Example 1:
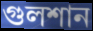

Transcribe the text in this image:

গুলশান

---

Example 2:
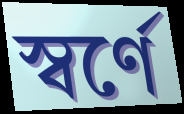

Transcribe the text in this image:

স্বর্ণে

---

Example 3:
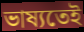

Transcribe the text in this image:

ভাষ্যতেই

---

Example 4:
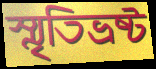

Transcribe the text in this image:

স্মৃতিভ্রষ্ট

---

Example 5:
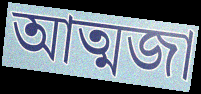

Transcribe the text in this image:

আত্মজা